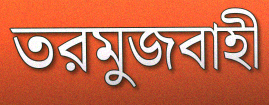
তরমুজবাহী